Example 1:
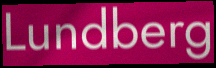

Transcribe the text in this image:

Lundberg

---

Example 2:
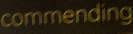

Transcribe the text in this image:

commending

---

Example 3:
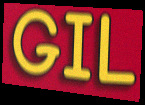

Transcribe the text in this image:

GIL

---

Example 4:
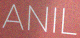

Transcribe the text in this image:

ANIL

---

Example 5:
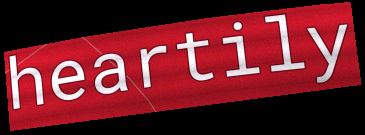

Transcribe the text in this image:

heartily